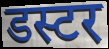
डस्टर